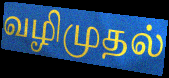
வழிமுதல்